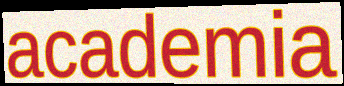
academia